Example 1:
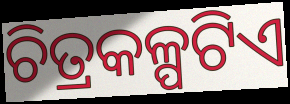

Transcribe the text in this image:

ଚିତ୍ରକଳ୍ପଟିଏ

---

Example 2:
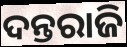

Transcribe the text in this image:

ଦନ୍ତରାଜି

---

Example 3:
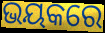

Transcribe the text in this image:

ଭୟକରେ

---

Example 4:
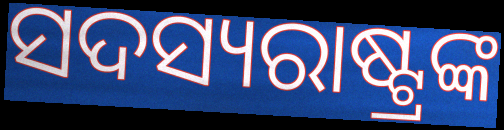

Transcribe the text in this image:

ସଦସ୍ୟରାଷ୍ଟ୍ରଙ୍କ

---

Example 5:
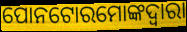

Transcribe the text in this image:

ପୋନଟୋରମୋଙ୍କଦ୍ୱାରା